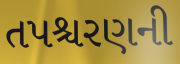
તપશ્ચરણની